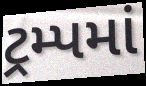
ટ્રમ્પમાં